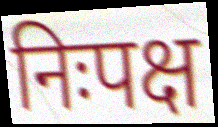
निःपक्ष